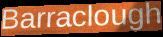
Barraclough